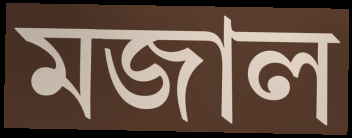
মজাল